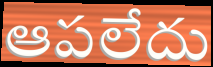
ఆపలేదు